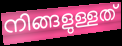
നിങ്ങളുള്ളത്